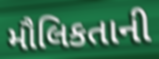
મૌલિકતાની